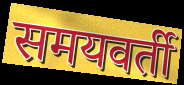
समयवर्ती